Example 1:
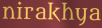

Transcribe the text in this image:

nirakhya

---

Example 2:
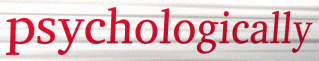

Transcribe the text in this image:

psychologically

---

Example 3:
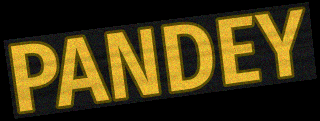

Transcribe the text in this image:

PANDEY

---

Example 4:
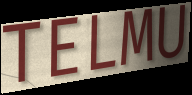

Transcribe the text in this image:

TELMU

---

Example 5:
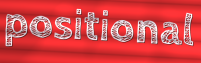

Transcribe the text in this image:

positional